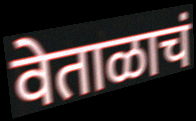
वेताळाचं